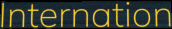
Internation